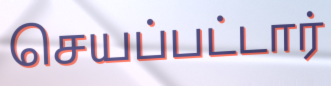
செயப்பட்டார்